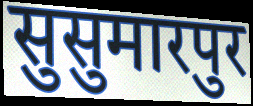
सुसुमारपुर